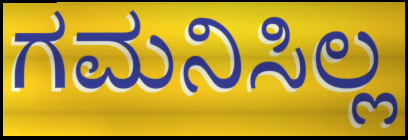
ಗಮನಿಸಿಲ್ಲ